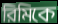
রিমিকে